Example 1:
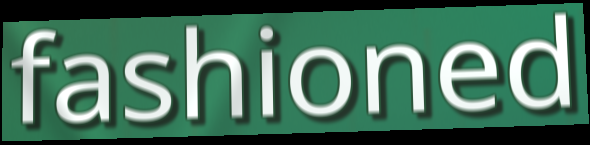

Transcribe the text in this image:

fashioned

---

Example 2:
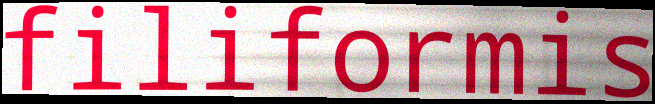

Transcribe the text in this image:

filiformis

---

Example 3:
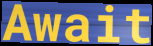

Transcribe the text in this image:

Await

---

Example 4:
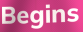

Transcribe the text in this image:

Begins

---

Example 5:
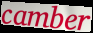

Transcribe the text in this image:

camber